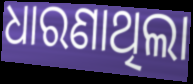
ଧାରଣାଥିଲା